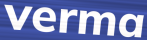
verma